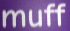
muff